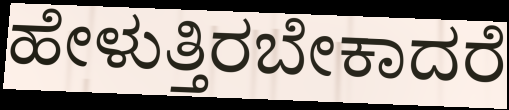
ಹೇಳುತ್ತಿರಬೇಕಾದರೆ